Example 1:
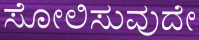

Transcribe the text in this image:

ಸೋಲಿಸುವುದೇ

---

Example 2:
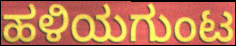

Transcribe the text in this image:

ಹಳಿಯಗುಂಟ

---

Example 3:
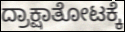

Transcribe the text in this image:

ದ್ರಾಕ್ಷಾತೋಟಕ್ಕೆ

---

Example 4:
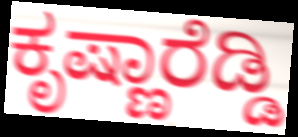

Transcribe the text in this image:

ಕೃಷ್ಣಾರೆಡ್ಡಿ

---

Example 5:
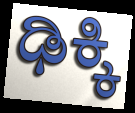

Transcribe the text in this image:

ಢಿಕ್ಕಿ